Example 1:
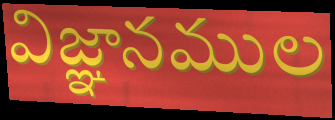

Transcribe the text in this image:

విజ్ఞానముల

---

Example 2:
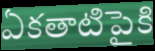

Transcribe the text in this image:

ఏకతాటిపైకి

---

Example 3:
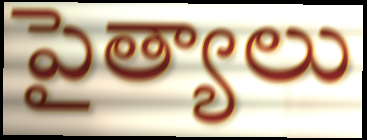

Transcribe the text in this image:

పైత్యాలు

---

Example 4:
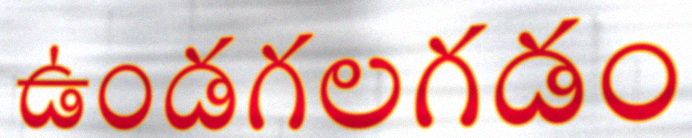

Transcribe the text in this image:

ఉండగలగడం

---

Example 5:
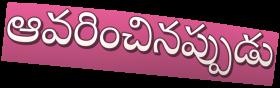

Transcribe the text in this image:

ఆవరించినప్పుడు